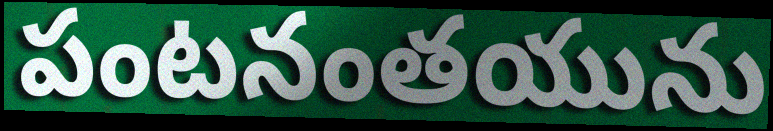
పంటనంతయును